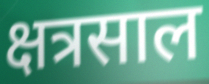
क्षत्रसाल